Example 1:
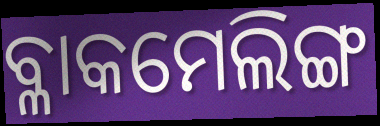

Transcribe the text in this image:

ବ୍ଳାକମେଲିଙ୍ଗ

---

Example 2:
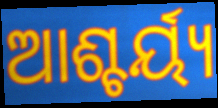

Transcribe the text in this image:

ଆଶ୍ଚର୍ୟ୍ଯ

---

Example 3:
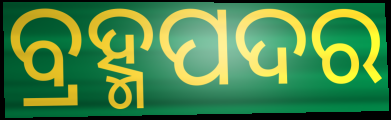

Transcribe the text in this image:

ବ୍ରହ୍ମପଦର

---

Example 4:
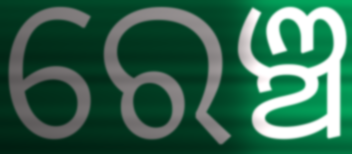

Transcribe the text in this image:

ରେଞ୍ଚ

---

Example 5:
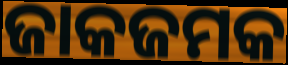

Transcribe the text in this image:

ଜାକଜମକ